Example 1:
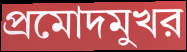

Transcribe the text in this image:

প্রমোদমুখর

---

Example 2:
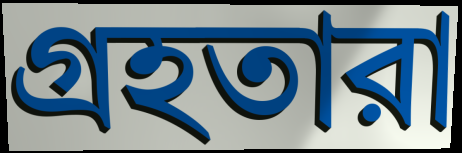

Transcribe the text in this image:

গ্রহতারা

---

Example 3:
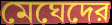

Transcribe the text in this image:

মেঘেদের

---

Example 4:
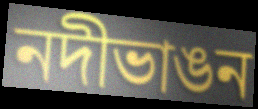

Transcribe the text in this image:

নদীভাঙন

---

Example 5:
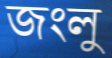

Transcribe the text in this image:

জংলু